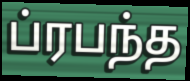
ப்ரபந்த